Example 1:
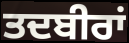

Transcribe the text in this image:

ਤਦਬੀਰਾਂ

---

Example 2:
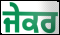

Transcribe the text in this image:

ਜੇਕਰ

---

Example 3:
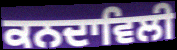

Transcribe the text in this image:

ਕਨਦਾਵਿਲੀ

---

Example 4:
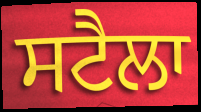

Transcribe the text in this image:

ਸਟੈਲਾ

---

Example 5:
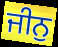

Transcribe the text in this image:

ਜੀਨੁ